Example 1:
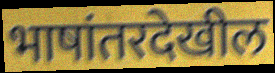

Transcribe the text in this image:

भाषांतरदेखील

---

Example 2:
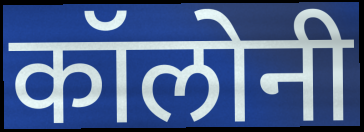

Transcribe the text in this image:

कॉलोनी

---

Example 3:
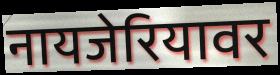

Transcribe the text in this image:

नायजेरियावर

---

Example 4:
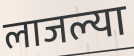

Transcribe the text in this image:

लाजल्या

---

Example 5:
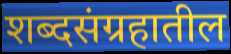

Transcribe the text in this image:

शब्दसंग्रहातील